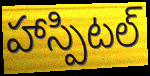
హాస్పిటల్